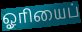
ஓரியைப்